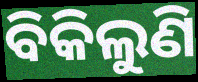
ବିକିଲୁଣି